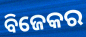
ବିଜେକର